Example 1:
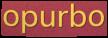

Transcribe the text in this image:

opurbo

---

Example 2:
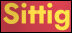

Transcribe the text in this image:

Sittig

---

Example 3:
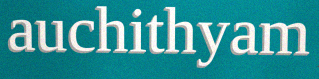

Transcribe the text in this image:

auchithyam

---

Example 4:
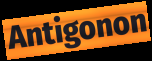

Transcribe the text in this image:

Antigonon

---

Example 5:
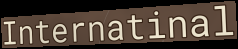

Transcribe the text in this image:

Internatinal